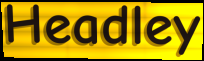
Headley